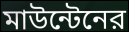
মাউন্টেনের